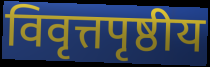
विवृत्तपृष्ठीय